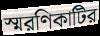
স্মরণিকাটির